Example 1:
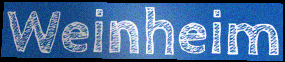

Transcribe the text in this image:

Weinheim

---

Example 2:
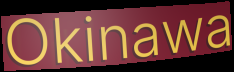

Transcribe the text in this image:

Okinawa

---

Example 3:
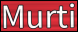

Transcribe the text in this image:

Murti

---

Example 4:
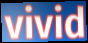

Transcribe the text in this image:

vivid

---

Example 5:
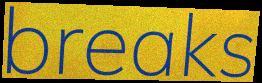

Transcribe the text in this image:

breaks